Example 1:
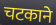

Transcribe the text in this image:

चटकाने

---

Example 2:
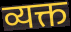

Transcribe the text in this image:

व्यक्त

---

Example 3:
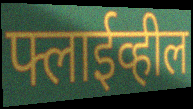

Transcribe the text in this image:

फ्लाईव्हील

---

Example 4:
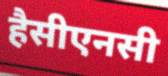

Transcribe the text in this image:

हैसीएनसी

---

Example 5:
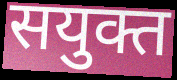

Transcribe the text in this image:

सयुक्त